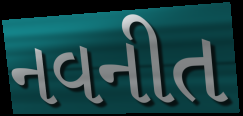
નવનીત